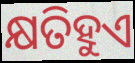
କ୍ଷତିହୁଏ